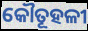
କୌତୂହଳୀ